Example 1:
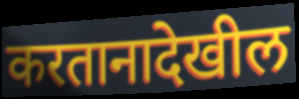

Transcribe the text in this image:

करतानादेखील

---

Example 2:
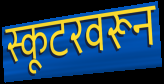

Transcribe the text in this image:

स्कूटरवरून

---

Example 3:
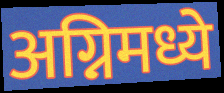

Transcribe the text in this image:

अग्निमध्ये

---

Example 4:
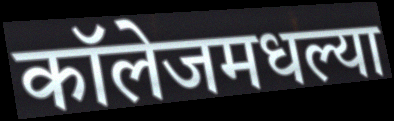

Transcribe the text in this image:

कॉलेजमधल्या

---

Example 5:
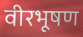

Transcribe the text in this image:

वीरभूषण